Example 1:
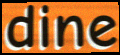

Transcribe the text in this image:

dine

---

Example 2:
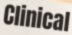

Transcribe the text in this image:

Clinical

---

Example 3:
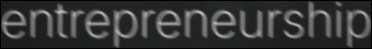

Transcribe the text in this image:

entrepreneurship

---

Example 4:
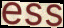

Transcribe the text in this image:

ess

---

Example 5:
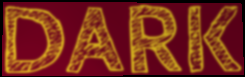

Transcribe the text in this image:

DARK